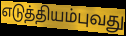
எடுத்தியம்புவது